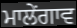
ਮਾਲੇਂਗਾਵ